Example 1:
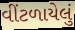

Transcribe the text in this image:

વીંટળાયેલું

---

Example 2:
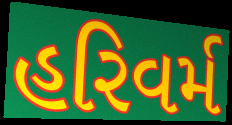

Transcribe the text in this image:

હરિવર્મ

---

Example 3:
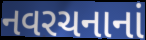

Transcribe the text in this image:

નવરચનાનાં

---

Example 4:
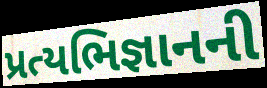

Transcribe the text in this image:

પ્રત્યભિજ્ઞાનની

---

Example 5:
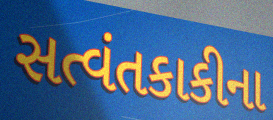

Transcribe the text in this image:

સત્વંતકાકીના